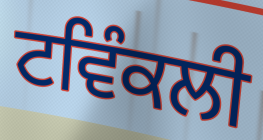
ਟਵਿੰਕਲੀ